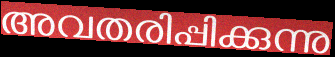
അവതരിപ്പിക്കുന്നു